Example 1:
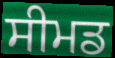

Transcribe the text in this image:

ਸੀਮਡ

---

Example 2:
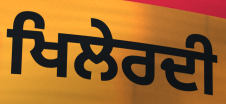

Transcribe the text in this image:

ਖਿਲੇਰਦੀ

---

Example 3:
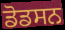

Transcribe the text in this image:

ਡੋਡਸਨ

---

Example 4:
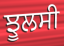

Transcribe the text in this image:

ਝੂਲਸੀ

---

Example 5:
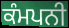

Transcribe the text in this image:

ਕੰਮਪਨੀ